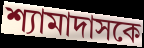
শ্যামাদাসকে